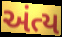
અંત્ય